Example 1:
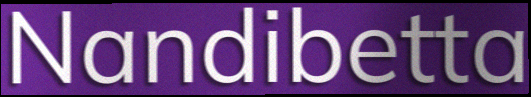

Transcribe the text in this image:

Nandibetta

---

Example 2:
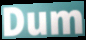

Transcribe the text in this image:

Dum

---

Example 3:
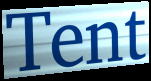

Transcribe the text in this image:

Tent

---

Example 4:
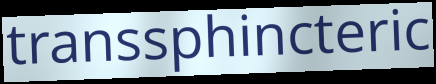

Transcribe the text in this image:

transsphincteric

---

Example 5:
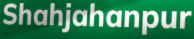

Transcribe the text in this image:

Shahjahanpur